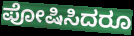
ಪೋಷಿಸಿದರೂ